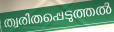
ത്വരിതപ്പെടുത്തൽ